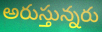
అరుస్తున్నరు